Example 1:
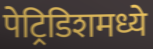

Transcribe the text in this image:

पेट्रिडिशमध्ये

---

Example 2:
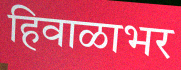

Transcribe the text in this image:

हिवाळाभर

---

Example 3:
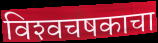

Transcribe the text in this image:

विश्वचषकाचा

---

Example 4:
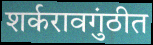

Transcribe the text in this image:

शर्करावगुंठीत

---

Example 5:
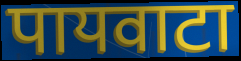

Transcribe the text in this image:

पायवाटा